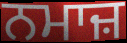
ਨਮਾਜ਼